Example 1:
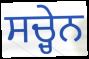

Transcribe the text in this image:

ਸਚ੍ਚੇਨ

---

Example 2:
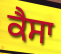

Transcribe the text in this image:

ਕੈਸਾ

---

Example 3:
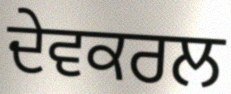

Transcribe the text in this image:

ਦੇਵਕਰਲ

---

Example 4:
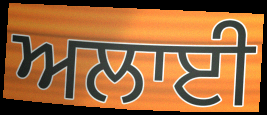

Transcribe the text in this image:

ਅਲਾਈ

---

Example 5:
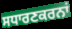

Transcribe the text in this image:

ਸਧਾਰਣਕਰਨਾਂ